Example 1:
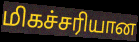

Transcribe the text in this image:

மிகச்சரியான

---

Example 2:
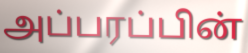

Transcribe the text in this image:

அப்பரப்பின்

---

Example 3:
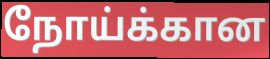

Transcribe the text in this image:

நோய்க்கான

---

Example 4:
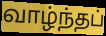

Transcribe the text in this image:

வாழ்ந்தப்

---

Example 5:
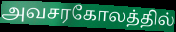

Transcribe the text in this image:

அவசரகோலத்தில்